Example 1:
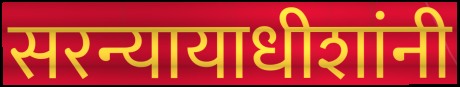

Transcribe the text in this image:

सरन्यायाधीशांनी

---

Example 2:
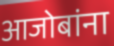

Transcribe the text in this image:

आजोबांना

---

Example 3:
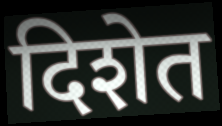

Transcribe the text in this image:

दिशेत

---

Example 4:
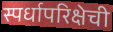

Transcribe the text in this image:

स्पर्धापरिक्षेची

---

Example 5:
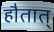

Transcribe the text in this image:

हौतात्